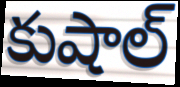
కుషాల్